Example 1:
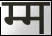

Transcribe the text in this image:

म्म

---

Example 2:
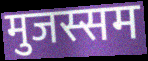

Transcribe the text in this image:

मुजस्सम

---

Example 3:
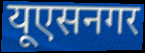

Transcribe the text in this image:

यूएसनगर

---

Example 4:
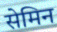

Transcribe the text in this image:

सेमिन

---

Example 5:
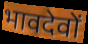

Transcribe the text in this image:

भावदेवों